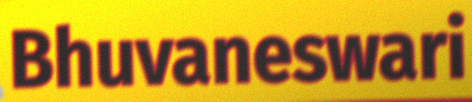
Bhuvaneswari